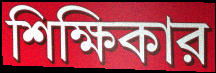
শিক্ষিকার